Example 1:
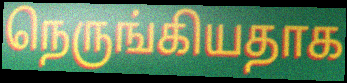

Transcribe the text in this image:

நெருங்கியதாக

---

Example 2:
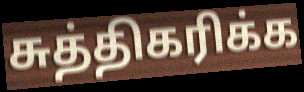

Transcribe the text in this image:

சுத்திகரிக்க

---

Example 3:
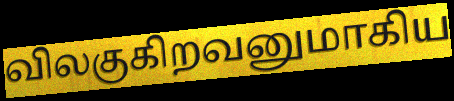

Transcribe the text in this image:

விலகுகிறவனுமாகிய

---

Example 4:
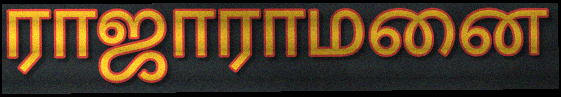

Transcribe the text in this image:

ராஜாராமனை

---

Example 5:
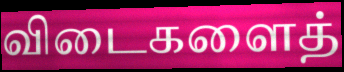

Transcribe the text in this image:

விடைகளைத்